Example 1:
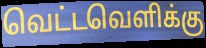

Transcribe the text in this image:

வெட்டவெளிக்கு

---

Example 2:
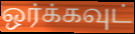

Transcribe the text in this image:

ஒர்க்கவுட்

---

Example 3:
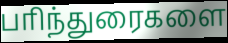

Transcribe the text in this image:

பரிந்துரைகளை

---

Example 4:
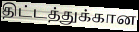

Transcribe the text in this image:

திட்டத்துக்கான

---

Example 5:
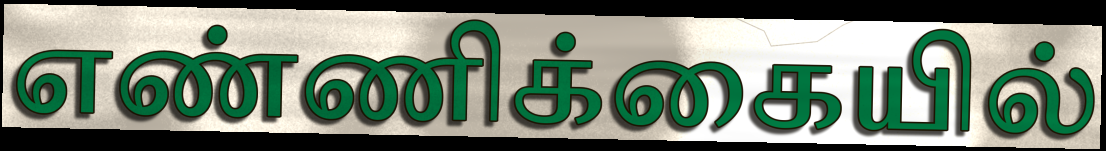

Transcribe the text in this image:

எண்ணிக்கையில்